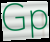
Gp